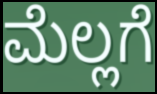
ಮೆಲ್ಲಗೆ